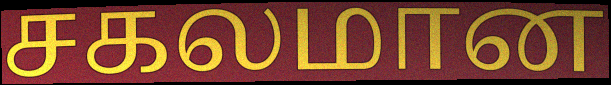
சகலமான